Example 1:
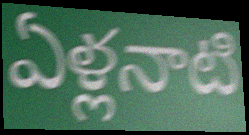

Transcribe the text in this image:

ఏళ్లనాటి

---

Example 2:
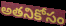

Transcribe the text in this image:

అతనికోసం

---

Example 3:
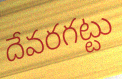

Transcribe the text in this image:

దేవరగట్టు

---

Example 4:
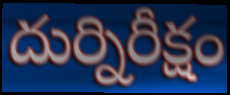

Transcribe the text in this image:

దుర్నిరీక్షం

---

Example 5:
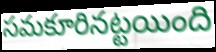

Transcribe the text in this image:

సమకూరినట్టయింది